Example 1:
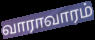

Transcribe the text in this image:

வாராவாரம்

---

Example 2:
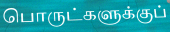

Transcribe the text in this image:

பொருட்களுக்குப்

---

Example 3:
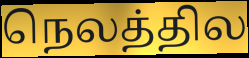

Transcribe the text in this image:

நெலத்தில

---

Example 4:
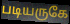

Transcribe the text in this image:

படியருகே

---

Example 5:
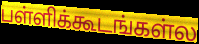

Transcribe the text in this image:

பள்ளிக்கூடங்கள்ல